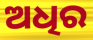
ଅଧିର